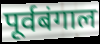
पूर्वबंगाल